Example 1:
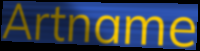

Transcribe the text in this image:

Artname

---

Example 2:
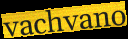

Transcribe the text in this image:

vachvano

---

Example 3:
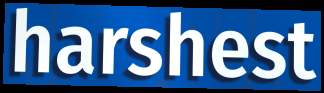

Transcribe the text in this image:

harshest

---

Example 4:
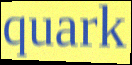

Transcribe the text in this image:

quark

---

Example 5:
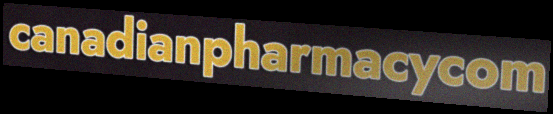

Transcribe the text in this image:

canadianpharmacycom